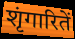
शृंगारितें